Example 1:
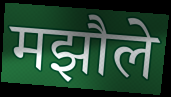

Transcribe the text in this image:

मझौले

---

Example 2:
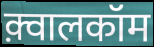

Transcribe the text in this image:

क़्वालकॉम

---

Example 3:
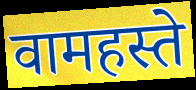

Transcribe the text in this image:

वामहस्ते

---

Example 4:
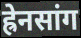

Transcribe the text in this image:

ह्रेनसांग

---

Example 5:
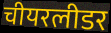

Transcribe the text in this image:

चीयरलीडर